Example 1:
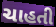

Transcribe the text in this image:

ચાહતી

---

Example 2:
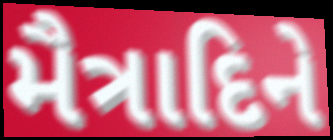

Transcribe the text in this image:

મૈત્રાદિને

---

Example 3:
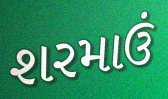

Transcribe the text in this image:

શરમાઉં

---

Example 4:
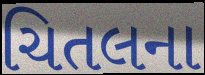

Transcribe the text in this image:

ચિતલના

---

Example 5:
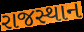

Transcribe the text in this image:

રાજસ્થાન